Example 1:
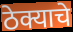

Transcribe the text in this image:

ठेक्याचे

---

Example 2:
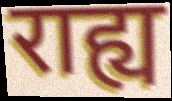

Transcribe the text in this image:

राह्य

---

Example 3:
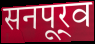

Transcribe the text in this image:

सनपूर्व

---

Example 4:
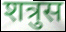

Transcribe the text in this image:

शत्रुस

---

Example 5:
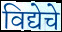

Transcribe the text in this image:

विद्येचे